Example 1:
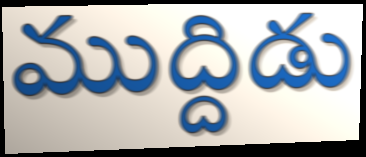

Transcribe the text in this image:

ముద్దిడు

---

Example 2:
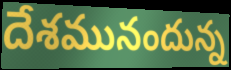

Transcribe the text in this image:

దేశమునందున్న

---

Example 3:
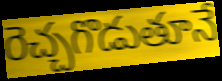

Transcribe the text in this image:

రెచ్చగొడుతూనే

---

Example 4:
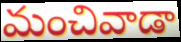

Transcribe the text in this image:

మంచివాడా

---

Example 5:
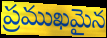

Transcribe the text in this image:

ప్రముఖమైన